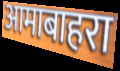
आमाबाहरा